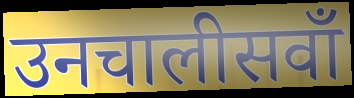
उनचालीसवाँ